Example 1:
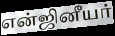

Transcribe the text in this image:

என்ஜினீயர்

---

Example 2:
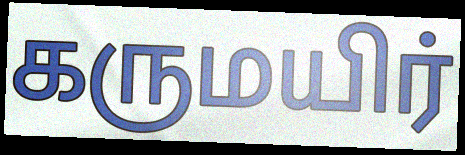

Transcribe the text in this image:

கருமயிர்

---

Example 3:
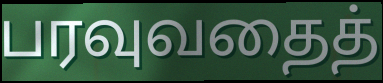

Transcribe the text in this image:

பரவுவதைத்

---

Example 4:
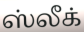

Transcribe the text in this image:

ஸ்லீக்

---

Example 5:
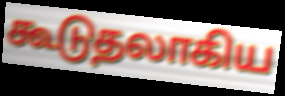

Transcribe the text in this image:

கூடுதலாகிய